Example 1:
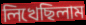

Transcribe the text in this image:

লিখেছিলাম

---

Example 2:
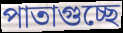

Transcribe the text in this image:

পাতাগুচ্ছে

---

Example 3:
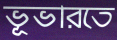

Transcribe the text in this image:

ভূভারতে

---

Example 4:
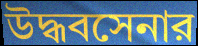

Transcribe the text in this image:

উদ্ধবসেনার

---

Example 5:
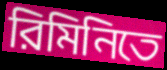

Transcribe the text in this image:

রিমিনিতে